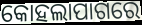
କୋହଲାପାଗରେ